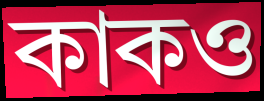
কাকও